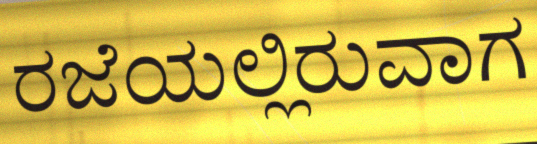
ರಜೆಯಲ್ಲಿರುವಾಗ